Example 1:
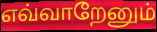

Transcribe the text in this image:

எவ்வாறேனும்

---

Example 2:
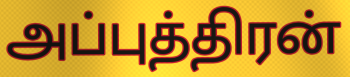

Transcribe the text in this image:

அப்புத்திரன்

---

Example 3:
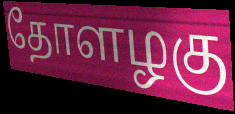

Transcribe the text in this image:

தோளழகு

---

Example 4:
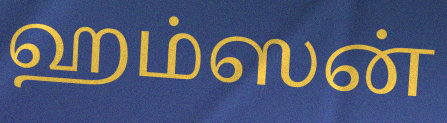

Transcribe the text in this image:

ஹம்ஸன்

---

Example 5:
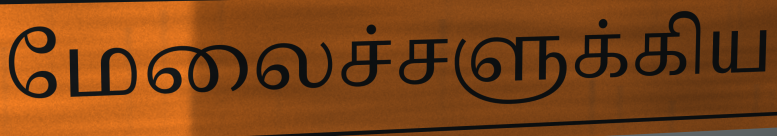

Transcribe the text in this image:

மேலைச்சளுக்கிய